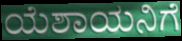
ಯೆಶಾಯನಿಗೆ